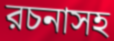
রচনাসহ